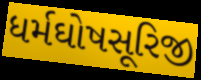
ધર્મઘોષસૂરિજી